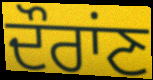
ਦੌਰਾਂਣ